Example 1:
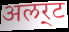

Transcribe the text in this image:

अलर्ट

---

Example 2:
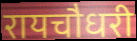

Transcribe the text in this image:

रायचौधरी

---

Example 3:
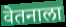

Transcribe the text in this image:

वेतनाला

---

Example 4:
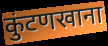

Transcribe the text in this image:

कुंटणखाना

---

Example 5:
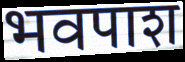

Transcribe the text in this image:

भवपाश